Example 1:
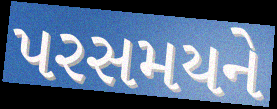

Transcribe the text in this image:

પરસમયને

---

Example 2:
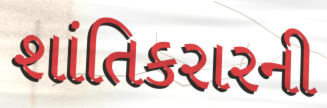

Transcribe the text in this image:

શાંતિકરારની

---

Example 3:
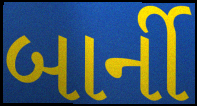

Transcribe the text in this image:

બાર્ની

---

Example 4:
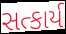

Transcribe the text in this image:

સત્કાર્ય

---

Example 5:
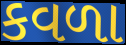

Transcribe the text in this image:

કવળા